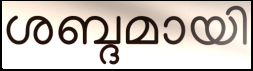
ശബ്ദമായി